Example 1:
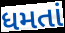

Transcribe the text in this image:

ધમતાં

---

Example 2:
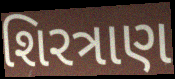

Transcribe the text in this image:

શિરત્રાણ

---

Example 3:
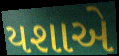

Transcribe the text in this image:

યશાએ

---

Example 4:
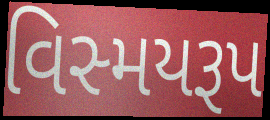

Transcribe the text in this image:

વિસ્મયરૂપ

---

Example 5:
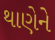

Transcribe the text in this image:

થાણેને